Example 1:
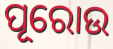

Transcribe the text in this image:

ପୂରୋଉ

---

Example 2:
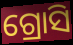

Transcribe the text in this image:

ଗ୍ରୋସି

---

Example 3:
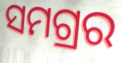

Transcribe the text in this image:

ସମଗ୍ରର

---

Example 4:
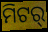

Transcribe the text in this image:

ମିଟର୍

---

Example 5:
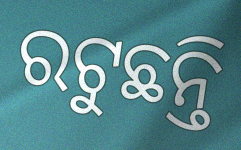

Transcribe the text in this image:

ରଟୁଛନ୍ତି